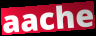
aache